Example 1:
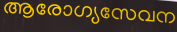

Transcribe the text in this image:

ആരോഗ്യസേവന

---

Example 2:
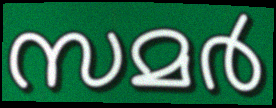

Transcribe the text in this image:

സമർ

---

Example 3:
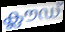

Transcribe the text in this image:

ക്ലൗഡ്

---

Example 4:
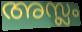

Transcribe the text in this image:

അസ്ലം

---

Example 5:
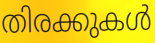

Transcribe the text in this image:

തിരക്കുകൾ